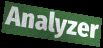
Analyzer